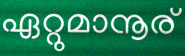
ഏറ്റുമാനൂര്